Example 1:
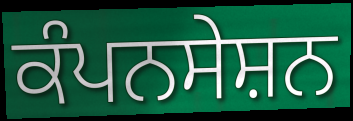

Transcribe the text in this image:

ਕੰਪਨਸੇਸ਼ਨ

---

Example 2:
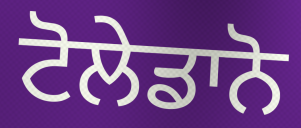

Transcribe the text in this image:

ਟੋਲੇਡਾਨੋ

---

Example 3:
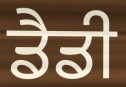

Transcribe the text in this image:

ਡੈਡੀ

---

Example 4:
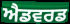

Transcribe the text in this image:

ਐਡਵਰਡ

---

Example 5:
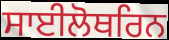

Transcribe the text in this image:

ਸਾਈਲੋਥਰਿਨ